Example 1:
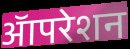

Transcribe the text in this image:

ॲापरेशन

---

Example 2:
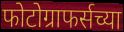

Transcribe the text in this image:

फोटोग्राफर्सच्या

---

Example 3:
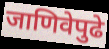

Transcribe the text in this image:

जाणिवेपुढे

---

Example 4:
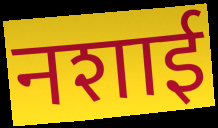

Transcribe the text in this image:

नशाई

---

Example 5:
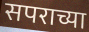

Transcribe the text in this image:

सपराच्या